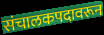
संचालकपदावरून